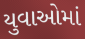
યુવાઓમાં